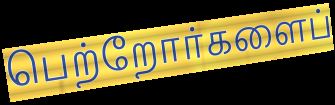
பெற்றோர்களைப்